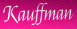
Kauffman